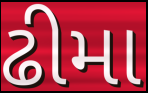
ઢીમા